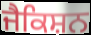
ਜੈਕਿਸ਼ਨ